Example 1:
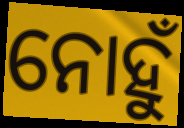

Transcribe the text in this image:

ନୋହୁଁ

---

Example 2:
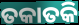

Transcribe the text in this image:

ତକାତକି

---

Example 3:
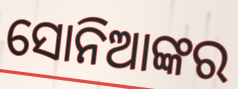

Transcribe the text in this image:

ସୋନିଆଙ୍କର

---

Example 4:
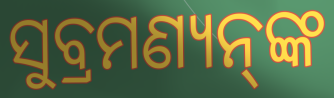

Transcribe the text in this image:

ସୁବ୍ରମଣ୍ୟନ୍‌ଙ୍କ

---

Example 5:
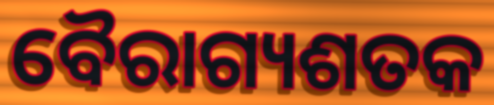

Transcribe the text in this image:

ବୈରାଗ୍ୟଶତକ